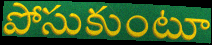
పోసుకుంటూ